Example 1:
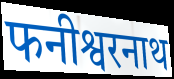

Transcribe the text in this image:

फनीश्वरनाथ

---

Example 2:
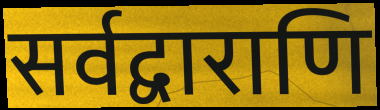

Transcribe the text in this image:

सर्वद्वाराणि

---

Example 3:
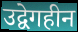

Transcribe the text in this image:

उद्वेगहीन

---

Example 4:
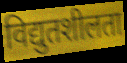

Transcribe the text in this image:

विद्युतशीलता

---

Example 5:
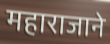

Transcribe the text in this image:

महाराजाने